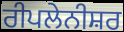
ਰੀਪਲੇਨੀਸ਼ਰ